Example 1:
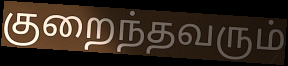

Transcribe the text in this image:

குறைந்தவரும்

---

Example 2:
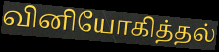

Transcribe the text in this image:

வினியோகித்தல்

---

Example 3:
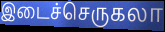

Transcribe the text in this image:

இடைச்செருகலா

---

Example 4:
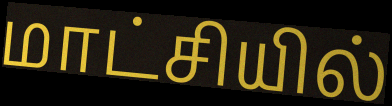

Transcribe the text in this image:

மாட்சியில்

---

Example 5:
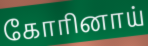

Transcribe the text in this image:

கோரினாய்